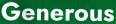
Generous